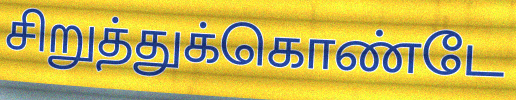
சிறுத்துக்கொண்டே